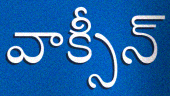
వాక్సీన్